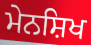
ਮੇਨਸ਼ਿਖ